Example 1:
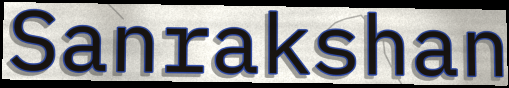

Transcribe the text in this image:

Sanrakshan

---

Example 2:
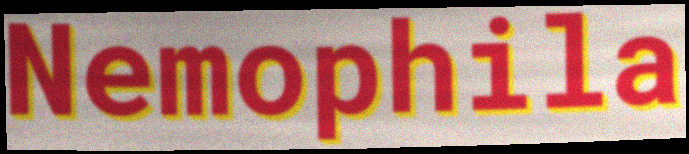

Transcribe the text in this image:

Nemophila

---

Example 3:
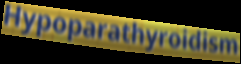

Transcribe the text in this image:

Hypoparathyroidism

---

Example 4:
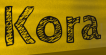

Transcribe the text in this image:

Kora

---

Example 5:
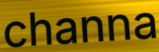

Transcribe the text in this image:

channa